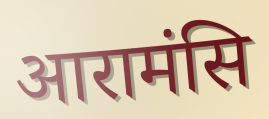
आरामंसि